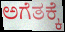
ಅಗೆತಕ್ಕೆ